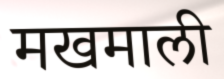
मखमाली